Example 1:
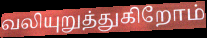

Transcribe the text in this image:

வலியுறுத்துகிறோம்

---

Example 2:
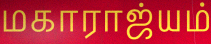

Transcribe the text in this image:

மகாராஜ்யம்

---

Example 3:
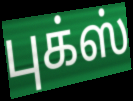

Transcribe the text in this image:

புக்ஸ்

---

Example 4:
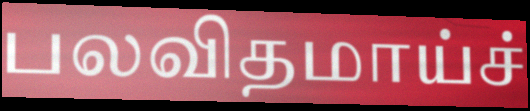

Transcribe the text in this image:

பலவிதமாய்ச்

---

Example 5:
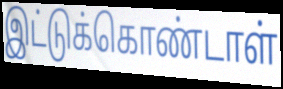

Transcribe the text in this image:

இட்டுக்கொண்டாள்